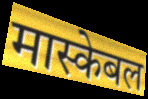
मास्केबल